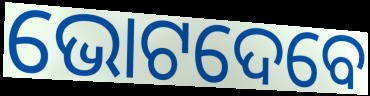
ଭୋଟଦେବେ